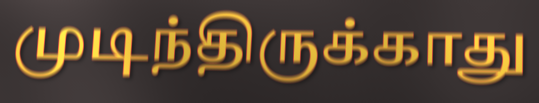
முடிந்திருக்காது